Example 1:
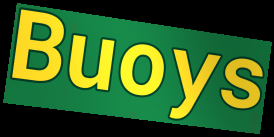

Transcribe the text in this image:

Buoys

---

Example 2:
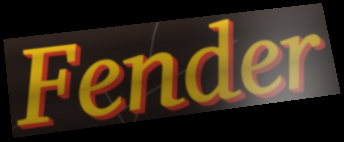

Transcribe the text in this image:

Fender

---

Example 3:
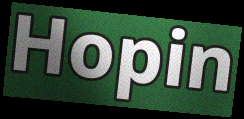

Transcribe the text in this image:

Hopin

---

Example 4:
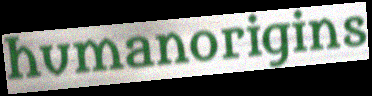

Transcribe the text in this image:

humanorigins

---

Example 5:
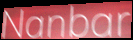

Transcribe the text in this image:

Nanbar